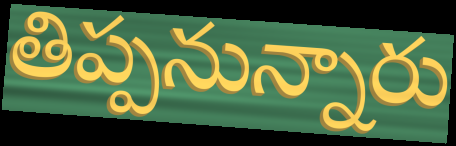
తిప్పనున్నారు